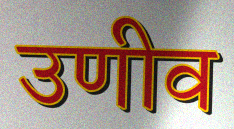
उणीव